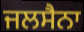
ਜਲਸੈਨਾ